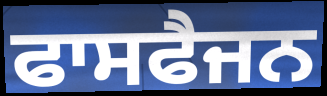
ਫਾਸਫੈਜਨ